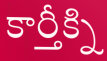
కార్తీక్ని